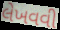
લેખવવી